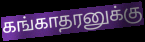
கங்காதரனுக்கு